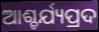
ଆଶ୍ଚର୍ଯ୍ୟପ୍ରଦ